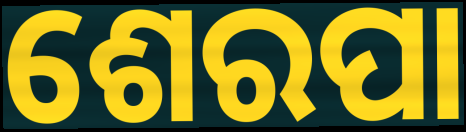
ଶେରପା